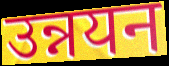
उन्नयन